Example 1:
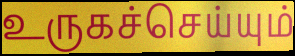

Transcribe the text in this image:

உருகச்செய்யும்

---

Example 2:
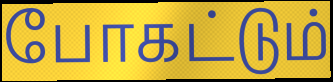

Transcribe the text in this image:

போகட்டும்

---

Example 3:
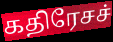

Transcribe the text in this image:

கதிரேசச்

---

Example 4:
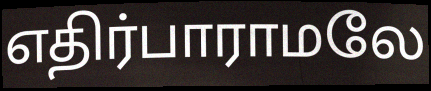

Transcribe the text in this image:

எதிர்பாராமலே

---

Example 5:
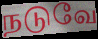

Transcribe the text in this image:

நடுவே